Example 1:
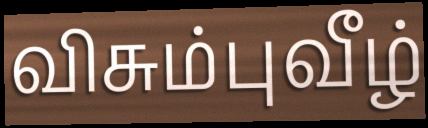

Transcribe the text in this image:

விசும்புவீழ்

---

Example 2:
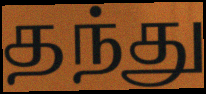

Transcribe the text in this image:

தந்து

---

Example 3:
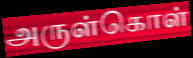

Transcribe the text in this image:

அருள்கொள்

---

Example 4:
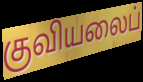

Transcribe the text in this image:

குவியலைப்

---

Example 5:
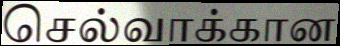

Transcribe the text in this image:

செல்வாக்கான